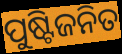
ପୁଷ୍ଟିଜନିତ